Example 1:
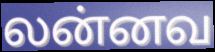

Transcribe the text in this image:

லன்னவ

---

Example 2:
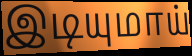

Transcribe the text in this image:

இடியுமாய்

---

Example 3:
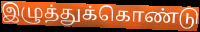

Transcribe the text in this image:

இழுத்துக்கொண்டு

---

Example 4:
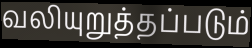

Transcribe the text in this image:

வலியுறுத்தப்படும்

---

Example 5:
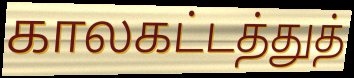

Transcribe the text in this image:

காலகட்டத்துத்